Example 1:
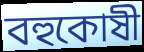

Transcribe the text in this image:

বহুকোষী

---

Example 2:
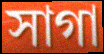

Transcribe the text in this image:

সাগা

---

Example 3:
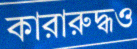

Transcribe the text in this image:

কারারুদ্ধও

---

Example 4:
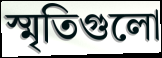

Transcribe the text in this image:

স্মৃতিগুলো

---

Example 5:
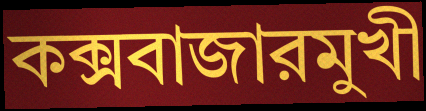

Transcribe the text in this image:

কক্সবাজারমুখী